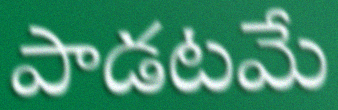
పాడటమే